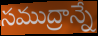
సముద్రాన్నే